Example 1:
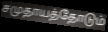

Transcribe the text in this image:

சமுதாயத்தோடும்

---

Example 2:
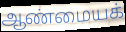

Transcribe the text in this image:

ஆண்மையக்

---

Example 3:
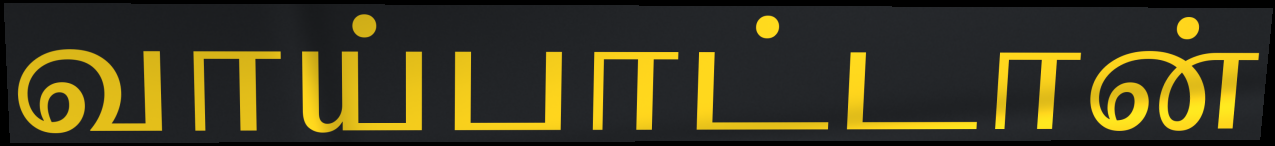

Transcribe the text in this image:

வாய்பாட்டான்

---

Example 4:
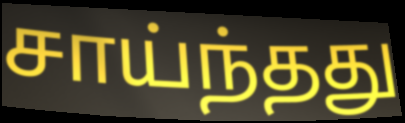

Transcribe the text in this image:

சாய்ந்தது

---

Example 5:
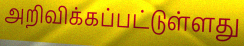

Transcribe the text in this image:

அறிவிக்கப்பட்டுள்ளது